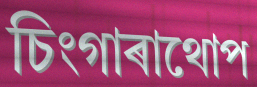
চিংগাৰাথোপ